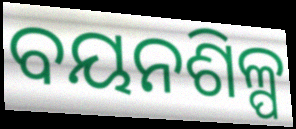
ବୟନଶିଳ୍ପ